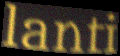
lanti